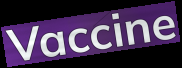
Vaccine